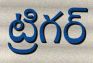
ట్రిగర్